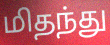
மிதந்து